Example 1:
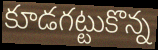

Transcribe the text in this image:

కూడగట్టుకొన్న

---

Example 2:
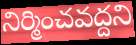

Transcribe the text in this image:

నిర్మించవద్దని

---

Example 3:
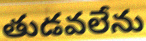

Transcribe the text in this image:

తుడవలేను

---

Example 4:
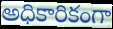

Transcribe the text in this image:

అధికారికంగా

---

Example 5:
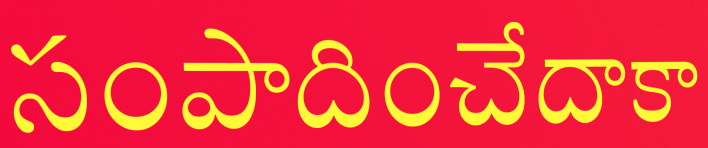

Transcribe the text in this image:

సంపాదించేదాకా